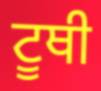
ਟੂਥੀ